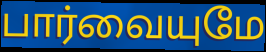
பார்வையுமே